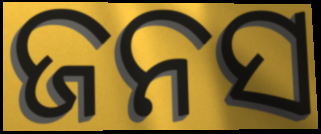
ଜନସ